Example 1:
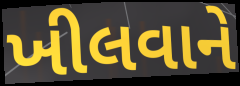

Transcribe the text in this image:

ખીલવાને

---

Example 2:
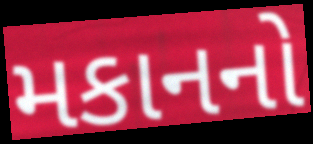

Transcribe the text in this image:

મકાનનો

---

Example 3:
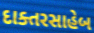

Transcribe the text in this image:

દાક્તરસાહેબ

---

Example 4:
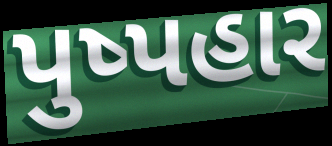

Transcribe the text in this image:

પુષ્પહાર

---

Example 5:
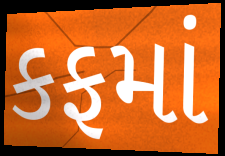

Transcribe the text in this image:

કફમાં